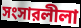
সংসারলীলা